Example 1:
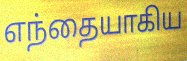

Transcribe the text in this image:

எந்தையாகிய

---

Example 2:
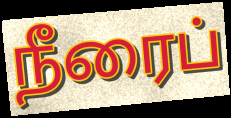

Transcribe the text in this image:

நீரைப்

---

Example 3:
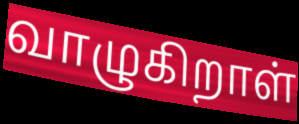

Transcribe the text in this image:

வாழுகிறாள்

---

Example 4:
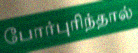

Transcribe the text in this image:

போர்புரிந்தால்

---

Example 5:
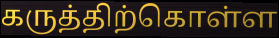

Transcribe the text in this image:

கருத்திற்கொள்ள